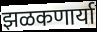
झळकणार्या